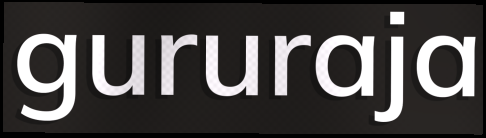
gururaja